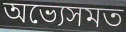
অভ্যেসমত